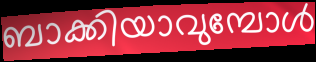
ബാക്കിയാവുമ്പോൾ